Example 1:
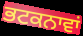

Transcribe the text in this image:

ਭਟਕਨਾਵਾਂ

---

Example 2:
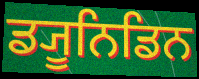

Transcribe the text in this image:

ਡ੍ਯੂਨਿਡਿਨ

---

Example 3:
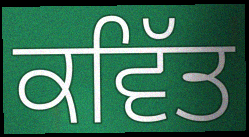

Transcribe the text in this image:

ਕਵਿੱਤ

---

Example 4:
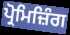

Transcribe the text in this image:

ਪ੍ਰੋਮਿਜ਼ਿੰਗ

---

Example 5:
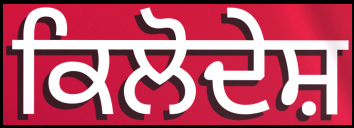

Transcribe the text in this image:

ਕਿਲੋਦੇਸ਼